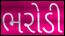
ભરોડી